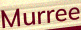
Murree